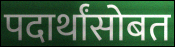
पदार्थांसोबत